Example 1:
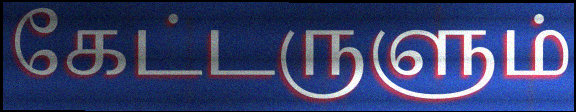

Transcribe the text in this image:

கேட்டருளும்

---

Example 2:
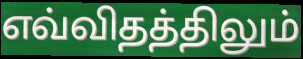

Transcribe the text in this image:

எவ்விதத்திலும்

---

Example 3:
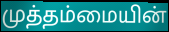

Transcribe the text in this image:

முத்தம்மையின்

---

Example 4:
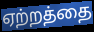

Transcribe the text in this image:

ஏற்றத்தை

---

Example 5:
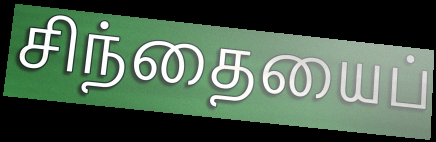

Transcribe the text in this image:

சிந்தையைப்